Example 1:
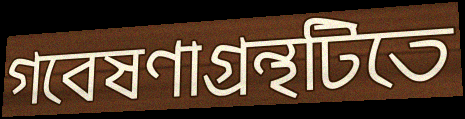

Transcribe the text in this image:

গবেষণাগ্রন্থটিতে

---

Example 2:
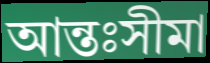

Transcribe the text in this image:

আন্তঃসীমা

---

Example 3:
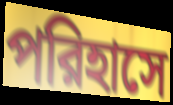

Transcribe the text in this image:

পরিহাসে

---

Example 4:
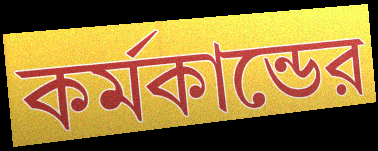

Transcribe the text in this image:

কর্মকান্ডের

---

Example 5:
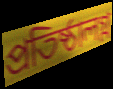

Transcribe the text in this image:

প্রতিষ্ঠালগ্ন